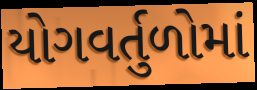
યોગવર્તુળોમાં